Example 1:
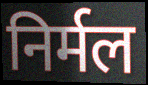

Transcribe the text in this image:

निर्मल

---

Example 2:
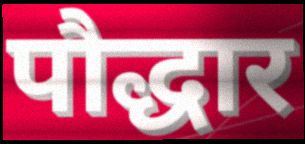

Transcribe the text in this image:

पौद्धार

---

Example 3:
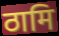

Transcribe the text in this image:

ठामि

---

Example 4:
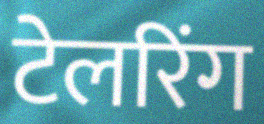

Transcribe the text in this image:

टेलरिंग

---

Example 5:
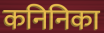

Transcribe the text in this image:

कनिनिका